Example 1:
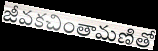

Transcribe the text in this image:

జీవకచింతామణితో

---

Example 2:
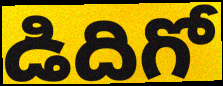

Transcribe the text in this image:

డిదిగో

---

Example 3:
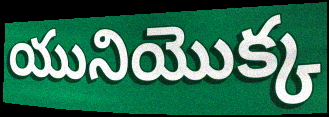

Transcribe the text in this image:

యునియొక్క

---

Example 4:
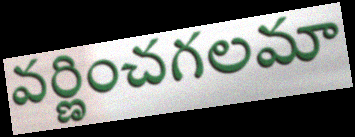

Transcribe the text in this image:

వర్ణించగలమా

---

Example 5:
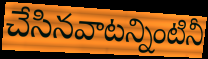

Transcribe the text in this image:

చేసినవాటన్నింటినీ